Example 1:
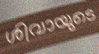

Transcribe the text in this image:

ശിവായുടെ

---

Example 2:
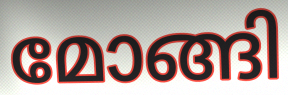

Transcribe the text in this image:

മോങ്ങി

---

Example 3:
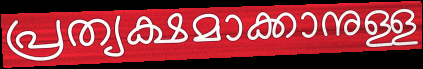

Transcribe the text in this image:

പ്രത്യക്ഷമാക്കാനുള്ള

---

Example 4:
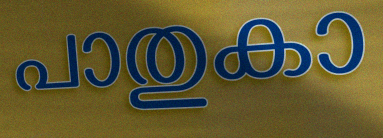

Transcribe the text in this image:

പാതുകാ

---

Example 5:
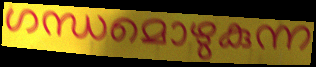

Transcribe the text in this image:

ഗന്ധമൊഴുകുന്ന